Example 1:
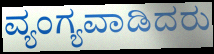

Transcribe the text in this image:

ವ್ಯಂಗ್ಯವಾಡಿದರು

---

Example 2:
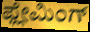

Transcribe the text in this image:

ಫ್ಲೇಮಿಂಗ್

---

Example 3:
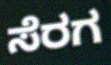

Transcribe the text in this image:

ಸೆರಗ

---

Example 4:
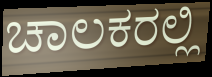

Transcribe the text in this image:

ಚಾಲಕರಲ್ಲಿ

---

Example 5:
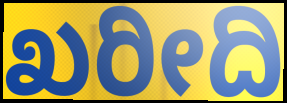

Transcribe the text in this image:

ಖರೀದಿ